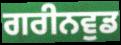
ਗਰੀਨਵੁਡ